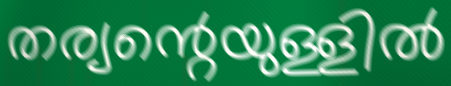
തര്യന്റെയുള്ളിൽ